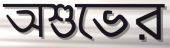
অশুভের